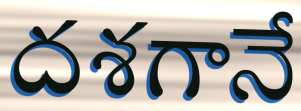
దశగానే